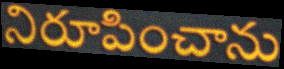
నిరూపించాను